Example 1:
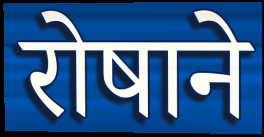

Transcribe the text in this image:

रोषाने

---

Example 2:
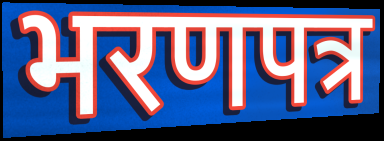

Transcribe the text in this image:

भरणपत्र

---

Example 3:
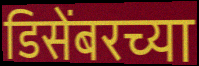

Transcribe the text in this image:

डिसेंबरच्या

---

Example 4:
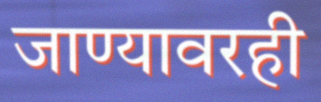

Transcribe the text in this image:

जाण्यावरही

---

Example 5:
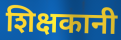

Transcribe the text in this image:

शिक्षकानी